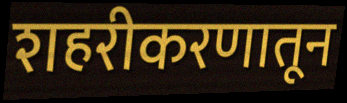
शहरीकरणातून